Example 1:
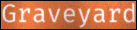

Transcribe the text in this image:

Graveyard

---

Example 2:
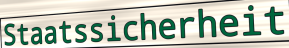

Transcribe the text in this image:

Staatssicherheit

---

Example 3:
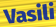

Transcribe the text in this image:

Vasili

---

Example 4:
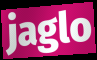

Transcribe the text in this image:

jaglo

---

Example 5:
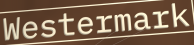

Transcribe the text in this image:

Westermark